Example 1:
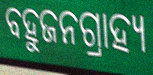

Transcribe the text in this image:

ବହୁଜନଗ୍ରାହ୍ୟ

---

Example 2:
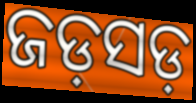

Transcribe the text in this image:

ଜଡ଼ସଡ଼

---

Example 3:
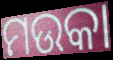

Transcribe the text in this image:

ମଉକା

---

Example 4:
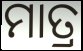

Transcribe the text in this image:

ମାତ୍ର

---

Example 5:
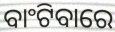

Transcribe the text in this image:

ବାଂଟିବାରେ